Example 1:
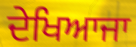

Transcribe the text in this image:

ਦੇਖਿਆਜਾ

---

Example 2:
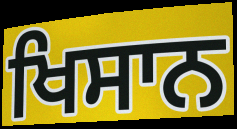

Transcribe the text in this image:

ਖਿਸਾਨ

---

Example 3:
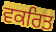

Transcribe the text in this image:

ਵਕਰਿਤ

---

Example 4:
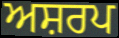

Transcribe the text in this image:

ਅਸ਼ਰਪ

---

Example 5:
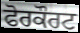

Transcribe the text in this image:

ਫੋਰਕੌਰਟ